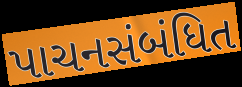
પાચનસંબંધિત